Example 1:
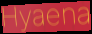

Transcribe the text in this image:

Hyaena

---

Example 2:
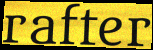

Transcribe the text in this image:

rafter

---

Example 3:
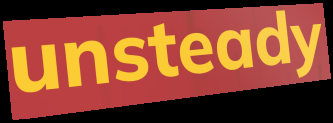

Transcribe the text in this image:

unsteady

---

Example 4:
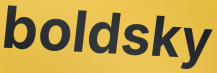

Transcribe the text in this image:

boldsky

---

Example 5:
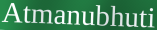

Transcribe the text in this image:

Atmanubhuti